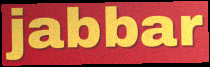
jabbar